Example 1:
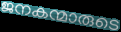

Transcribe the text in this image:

ജനകന്മാരുടെ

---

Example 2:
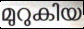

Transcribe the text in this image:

മുറുകിയ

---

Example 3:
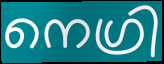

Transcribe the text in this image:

നെഗ്രി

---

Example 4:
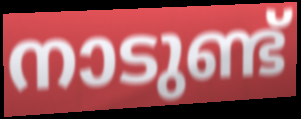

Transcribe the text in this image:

നാടുണ്ട്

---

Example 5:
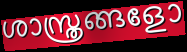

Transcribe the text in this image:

ശാസ്ത്രങ്ങളോ